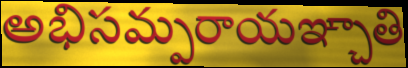
అభిసమ్పరాయఞ్చాతి